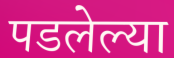
पडलेल्या